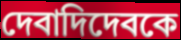
দেবাদিদেবকে